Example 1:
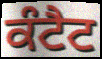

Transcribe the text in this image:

ਕੰਟੈਟ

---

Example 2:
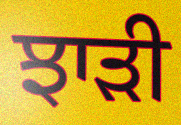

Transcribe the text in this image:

ਝਾੜੀ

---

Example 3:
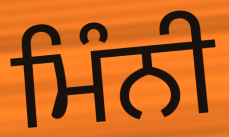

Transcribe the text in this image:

ਮਿੰਨੀ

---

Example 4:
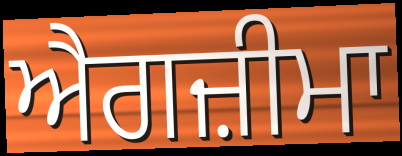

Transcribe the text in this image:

ਐਗਜ਼ੀਮਾ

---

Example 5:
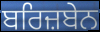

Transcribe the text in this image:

ਬਰਿਜ਼ਬੇਨ